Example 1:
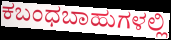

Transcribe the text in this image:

ಕಬಂಧಬಾಹುಗಳಲ್ಲಿ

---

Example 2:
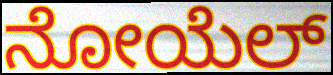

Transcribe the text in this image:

ನೋಯೆಲ್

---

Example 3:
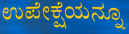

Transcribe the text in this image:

ಉಪೇಕ್ಷೆಯನ್ನೂ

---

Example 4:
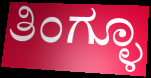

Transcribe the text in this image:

ತಿಂಗ್ಳೂ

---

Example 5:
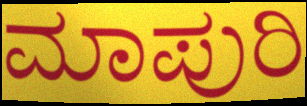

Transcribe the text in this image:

ಮಾಪುರಿ